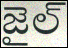
జైల్